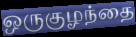
ஒருகுழந்தை